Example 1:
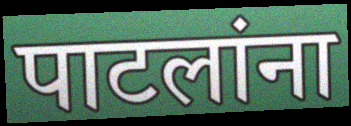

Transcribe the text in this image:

पाटलांना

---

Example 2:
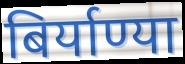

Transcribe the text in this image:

बिर्याण्या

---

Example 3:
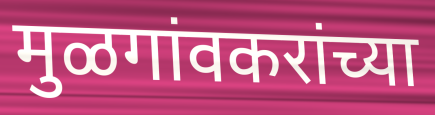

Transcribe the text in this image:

मुळगांवकरांच्या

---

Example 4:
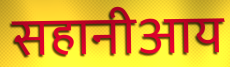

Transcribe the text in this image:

सहानीआय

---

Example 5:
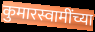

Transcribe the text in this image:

कुमारस्वामींच्या